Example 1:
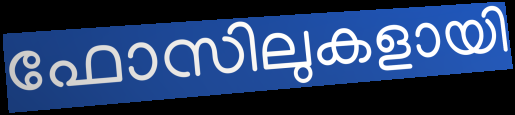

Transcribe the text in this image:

ഫോസിലുകളായി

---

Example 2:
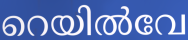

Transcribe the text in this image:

റെയിൽവേ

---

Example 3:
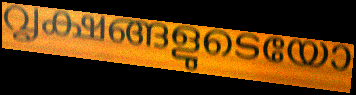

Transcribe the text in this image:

വൃക്ഷങ്ങളുടെയോ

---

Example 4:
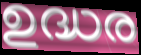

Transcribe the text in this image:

ഉദ്ധര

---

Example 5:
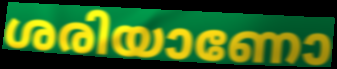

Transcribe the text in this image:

ശരിയാണോ